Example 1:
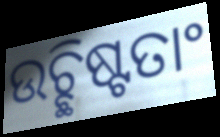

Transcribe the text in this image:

ଉଚ୍ଛିଷ୍ଟତାଂ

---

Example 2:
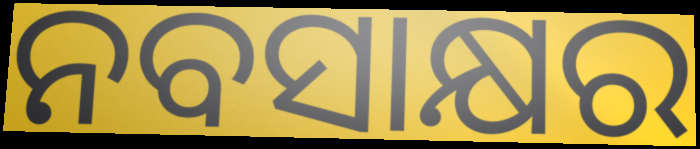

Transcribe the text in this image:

ନବସାକ୍ଷର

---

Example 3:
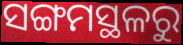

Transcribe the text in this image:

ସଙ୍ଗମସ୍ଥଳରୁ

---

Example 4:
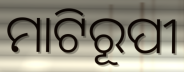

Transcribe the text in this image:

ମାଟିରୂପୀ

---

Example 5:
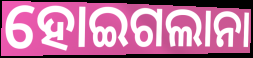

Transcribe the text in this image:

ହୋଇଗଲାନା